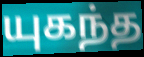
யுகந்த